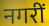
नगरीं